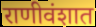
राणीवंशात